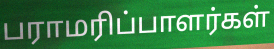
பராமரிப்பாளர்கள்